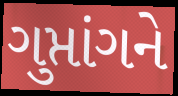
ગુપ્તાંગને